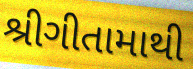
શ્રીગીતામાથી